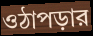
ওঠাপড়ার